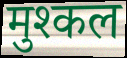
मुश्कल